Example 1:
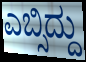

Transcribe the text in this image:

ಎಬ್ಸಿದ್ದು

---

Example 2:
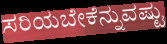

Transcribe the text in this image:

ಸರಿಯಬೇಕೆನ್ನುವಷ್ಟು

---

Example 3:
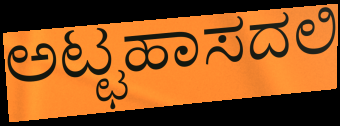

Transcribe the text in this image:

ಅಟ್ಟಹಾಸದಲಿ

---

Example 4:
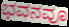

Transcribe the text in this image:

ಭವನವೂ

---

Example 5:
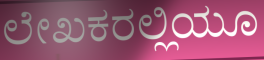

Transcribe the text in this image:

ಲೇಖಕರಲ್ಲಿಯೂ